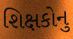
શિક્ષકોનુ